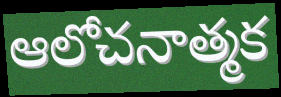
ఆలోచనాత్మక